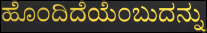
ಹೊಂದಿದೆಯೆಂಬುದನ್ನು